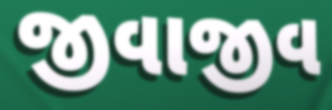
જીવાજીવ